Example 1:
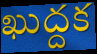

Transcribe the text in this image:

ఖుద్దక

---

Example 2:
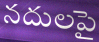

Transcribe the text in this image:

నదులపై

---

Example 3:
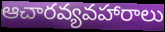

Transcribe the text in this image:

ఆచారవ్యవహారాలు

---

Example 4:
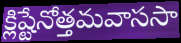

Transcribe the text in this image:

క్లిష్టేనోత్తమవాససా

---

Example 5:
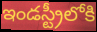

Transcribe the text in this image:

ఇండస్ట్రీలోకి